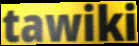
tawiki